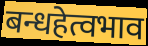
बन्धहेत्वभाव